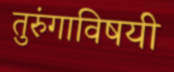
तुरुंगाविषयी